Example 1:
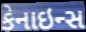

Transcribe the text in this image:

કેનાઇન્સ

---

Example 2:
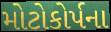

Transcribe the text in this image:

મોટોકોર્પના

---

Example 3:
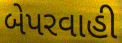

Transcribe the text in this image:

બેપરવાહી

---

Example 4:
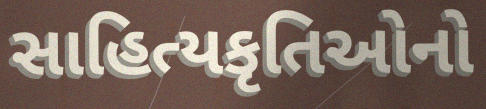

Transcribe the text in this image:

સાહિત્યકૃતિઓનો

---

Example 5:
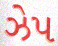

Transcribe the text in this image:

ઝેપ